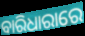
ବାରିଧାରାରେ